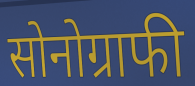
सोनोग्राफी